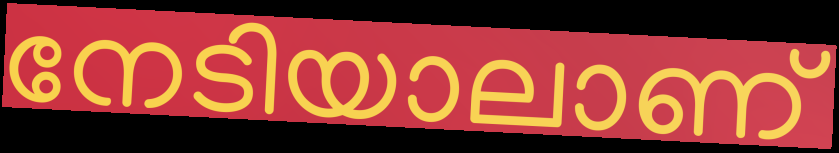
നേടിയാലാണ്